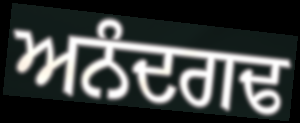
ਅਨੰਦਗਢ